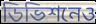
ডিভিশনেও